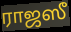
ராஜஸீ